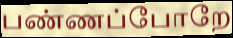
பண்ணப்போறே